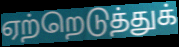
ஏற்றெடுத்துக்